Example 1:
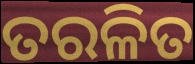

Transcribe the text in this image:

ତରଳିତ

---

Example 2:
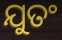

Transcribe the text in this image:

ଯୁତଂ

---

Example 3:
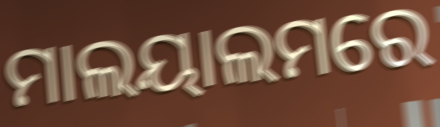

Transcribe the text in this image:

ମାଲୟାଲମରେ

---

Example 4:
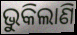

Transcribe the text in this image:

ଭୁକିଲାଣି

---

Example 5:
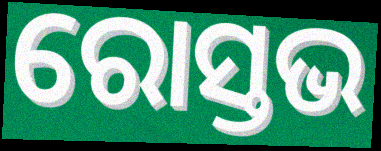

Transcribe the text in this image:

ରୋସ୍ତଭ